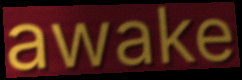
awake